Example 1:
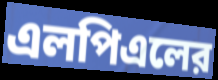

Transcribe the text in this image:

এলপিএলের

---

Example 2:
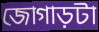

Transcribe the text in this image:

জোগাড়টা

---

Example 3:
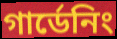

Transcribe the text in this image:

গার্ডেনিং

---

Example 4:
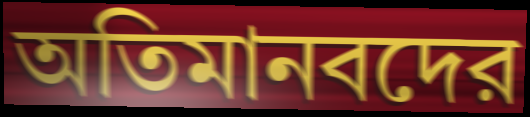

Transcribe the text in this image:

অতিমানবদের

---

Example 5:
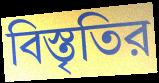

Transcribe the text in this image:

বিস্তৃতির